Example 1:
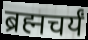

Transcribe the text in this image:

ब्रह्मचर्यं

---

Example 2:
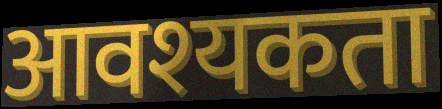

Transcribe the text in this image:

आवश्‍यकता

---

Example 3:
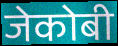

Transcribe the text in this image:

जेकोबी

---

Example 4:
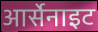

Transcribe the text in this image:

आर्सेनाइट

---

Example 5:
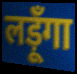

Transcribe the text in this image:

लड़ूँगा